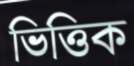
ভিত্তিক